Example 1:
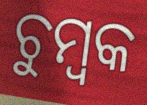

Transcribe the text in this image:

ଚୁମ୍ବକ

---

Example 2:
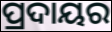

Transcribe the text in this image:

ପ୍ରଦାୟର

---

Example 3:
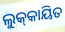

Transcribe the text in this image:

ଲୁକ୍‌କାୟିତ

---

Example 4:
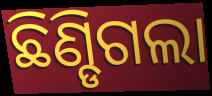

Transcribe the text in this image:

ଛିଣ୍ଡିଗଲା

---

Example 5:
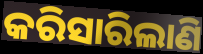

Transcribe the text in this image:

କରିସାରିଲାଣି